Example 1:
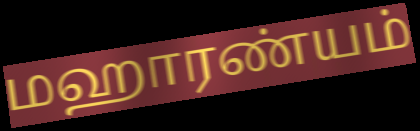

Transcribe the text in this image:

மஹாரண்யம்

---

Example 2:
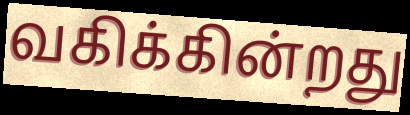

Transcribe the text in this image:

வகிக்கின்றது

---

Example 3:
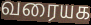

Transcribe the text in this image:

வரையக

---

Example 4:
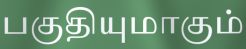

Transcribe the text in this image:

பகுதியுமாகும்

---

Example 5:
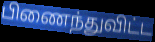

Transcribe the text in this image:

பிணைந்துவிட்ட